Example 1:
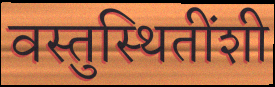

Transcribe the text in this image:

वस्तुस्थितींशी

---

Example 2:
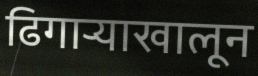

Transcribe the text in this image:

ढिगाऱ्याखालून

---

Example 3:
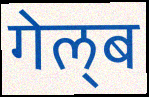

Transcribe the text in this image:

गेल्ब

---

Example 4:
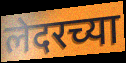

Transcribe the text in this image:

लेदरच्या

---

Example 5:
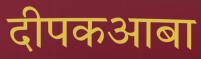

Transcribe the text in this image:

दीपकआबा